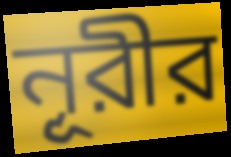
নূরীর